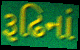
રૂઢિનાં